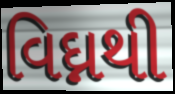
વિઘ્નથી